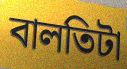
বালতিটা